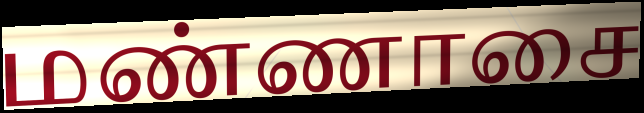
மண்ணாசை